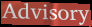
Advisory